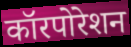
कॉरपोरेशन